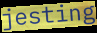
jesting